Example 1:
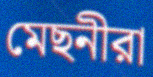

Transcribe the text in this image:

মেছনীরা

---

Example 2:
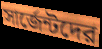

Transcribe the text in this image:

সার্জেন্টদের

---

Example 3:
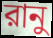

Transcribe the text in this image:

রানু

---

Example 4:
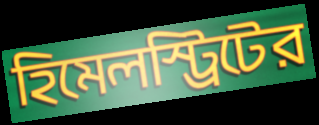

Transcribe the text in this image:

হিমেলস্ট্রিটের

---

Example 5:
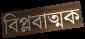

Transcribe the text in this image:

বিপ্লবাত্মক